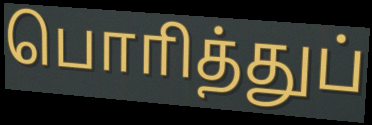
பொரித்துப்